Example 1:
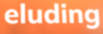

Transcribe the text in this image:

eluding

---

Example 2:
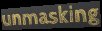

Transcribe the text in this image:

unmasking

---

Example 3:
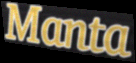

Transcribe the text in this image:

Manta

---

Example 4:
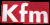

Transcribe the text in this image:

Kfm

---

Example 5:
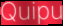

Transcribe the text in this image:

Quipu